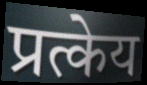
प्रत्केय